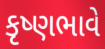
કૃષ્ણભાવે